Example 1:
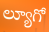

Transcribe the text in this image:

ల్యూగో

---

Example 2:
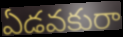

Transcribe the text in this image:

ఏడవకురా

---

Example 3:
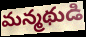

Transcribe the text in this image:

మన్మథుడి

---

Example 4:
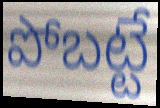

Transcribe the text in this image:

పోబట్టే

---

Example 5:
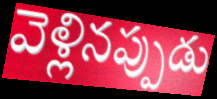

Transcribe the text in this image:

వెళ్లినప్పుడు